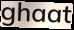
ghaat